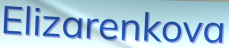
Elizarenkova